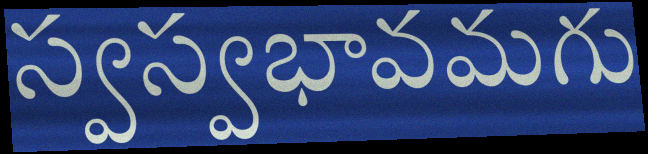
స్వస్వభావమగు